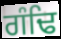
ਗੰਢਿ